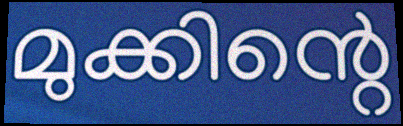
മുക്കിന്റെ